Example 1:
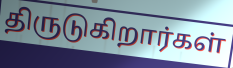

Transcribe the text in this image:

திருடுகிறார்கள்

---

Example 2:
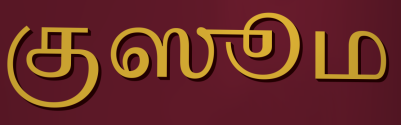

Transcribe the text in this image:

குஸூம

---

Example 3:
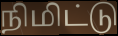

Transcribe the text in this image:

நிமிட்டு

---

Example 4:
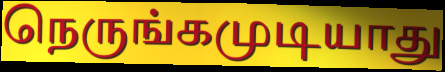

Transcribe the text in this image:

நெருங்கமுடியாது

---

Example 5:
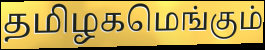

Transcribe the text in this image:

தமிழகமெங்கும்